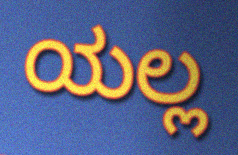
ಯಲ್ಲ